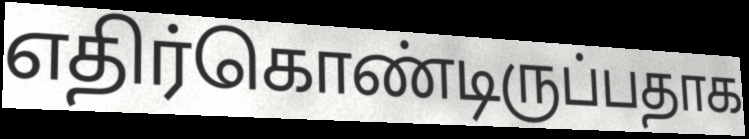
எதிர்கொண்டிருப்பதாக